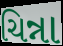
ચિન્ના